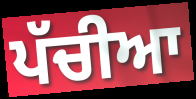
ਪੱਚੀਆ